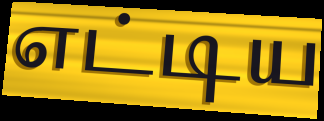
எட்டிய